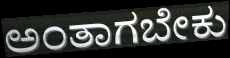
ಅಂತಾಗಬೇಕು